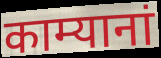
काम्यानां